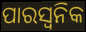
ପାରସ୍ୱନିକ